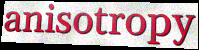
anisotropy